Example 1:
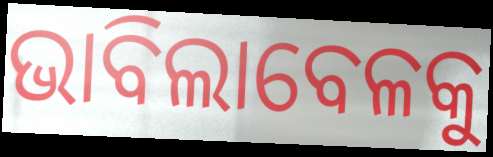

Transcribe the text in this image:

ଭାବିଲାବେଳକୁ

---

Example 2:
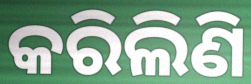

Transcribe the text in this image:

କରିଲିଣି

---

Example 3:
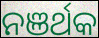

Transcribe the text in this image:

ନଞର୍ଥକ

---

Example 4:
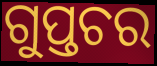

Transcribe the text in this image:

ଗୁପ୍ତଚର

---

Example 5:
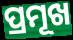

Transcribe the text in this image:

ପ୍ରମୂଖ